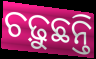
ଚଢ଼ୁଛନ୍ତି